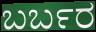
ಬರ್ಬರ